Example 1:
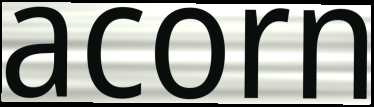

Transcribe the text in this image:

acorn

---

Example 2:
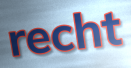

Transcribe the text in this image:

recht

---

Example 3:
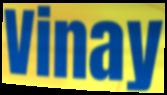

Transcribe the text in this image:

Vinay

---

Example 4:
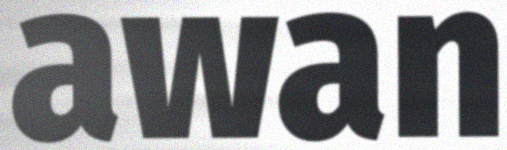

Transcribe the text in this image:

awan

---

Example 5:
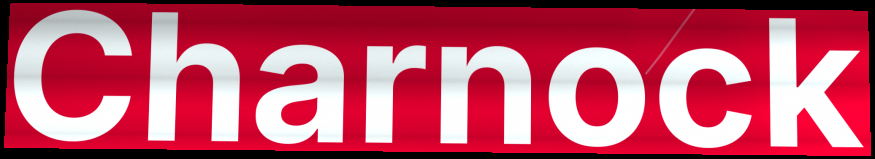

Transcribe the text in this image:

Charnock